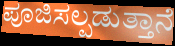
ಪೂಜಿಸಲ್ಪಡುತ್ತಾನೆ